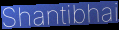
Shantibhai